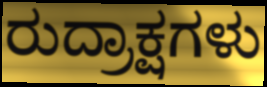
ರುದ್ರಾಕ್ಷಗಳು